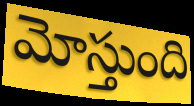
మోస్తుంది